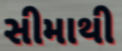
સીમાથી